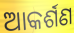
ଆକର୍ଶଣ